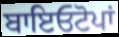
ਬਾਇਓਟੋਪਾਂ